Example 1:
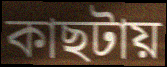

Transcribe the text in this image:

কাছটায়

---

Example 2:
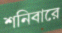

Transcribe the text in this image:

শনিবারে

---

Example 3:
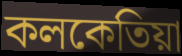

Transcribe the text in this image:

কলকেতিয়া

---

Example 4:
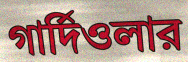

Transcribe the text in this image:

গার্দিওলার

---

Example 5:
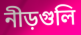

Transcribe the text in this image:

নীড়গুলি